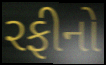
રફીનો